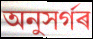
অনুসৰ্গৰ